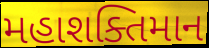
મહાશક્તિમાન